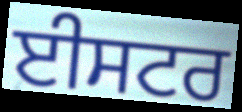
ਈਸਟਰ